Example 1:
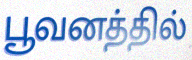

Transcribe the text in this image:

பூவனத்தில்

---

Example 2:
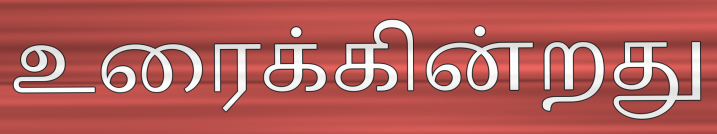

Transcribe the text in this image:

உரைக்கின்றது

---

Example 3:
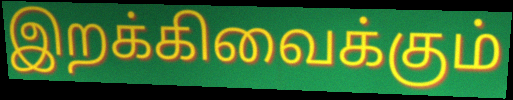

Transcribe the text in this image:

இறக்கிவைக்கும்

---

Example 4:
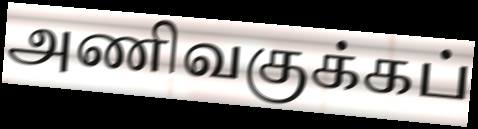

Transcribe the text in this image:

அணிவகுக்கப்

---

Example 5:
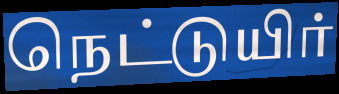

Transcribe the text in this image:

நெட்டுயிர்